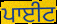
ਪਾਈਟ